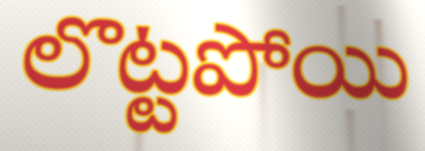
లొట్టపోయి